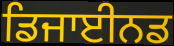
ਡਿਜਾਈਨਡ